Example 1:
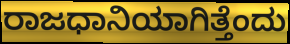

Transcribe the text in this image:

ರಾಜಧಾನಿಯಾಗಿತ್ತೆಂದು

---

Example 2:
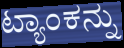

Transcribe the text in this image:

ಟ್ಯಾಂಕನ್ನು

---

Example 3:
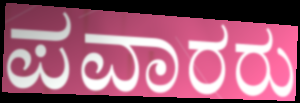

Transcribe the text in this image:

ಪವಾರರು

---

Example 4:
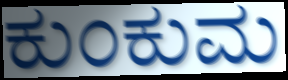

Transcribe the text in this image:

ಕುಂಕುಮ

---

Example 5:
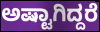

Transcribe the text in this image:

ಅಷ್ಟಾಗಿದ್ದರೆ